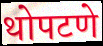
थोपटणे